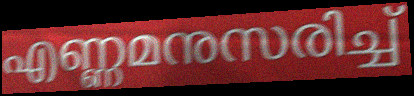
എണ്ണമനുസരിച്ച്